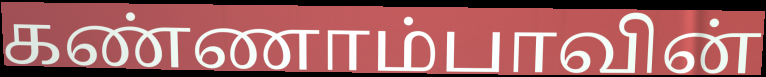
கண்ணாம்பாவின்